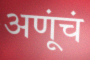
अणूंचं